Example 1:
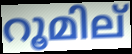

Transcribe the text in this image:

റൂമില്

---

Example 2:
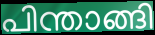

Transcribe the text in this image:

പിന്താങ്ങി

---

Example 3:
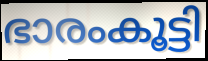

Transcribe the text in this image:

ഭാരംകൂട്ടി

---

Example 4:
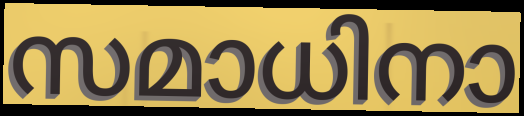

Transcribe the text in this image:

സമാധിനാ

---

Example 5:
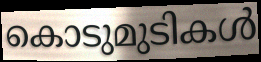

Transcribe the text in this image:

കൊടുമുടികൾ